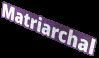
Matriarchal